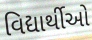
વિદ્યાર્થીઓ